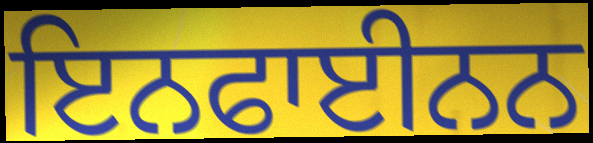
ਇਨਫਾਈਨਨ